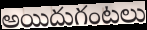
అయిదుగంటలు